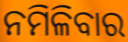
ନମିଳିବାର